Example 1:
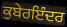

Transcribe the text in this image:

ਕੁਬੇਰਇੰਦਰ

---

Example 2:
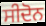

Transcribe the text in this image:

ਸੀਦੋਨ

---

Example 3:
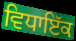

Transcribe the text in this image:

ਵਿਧਾਇੱਕ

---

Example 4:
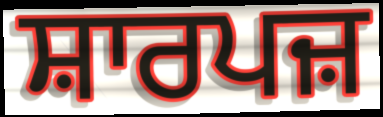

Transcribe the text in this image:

ਸ਼ਾਰਪਜ਼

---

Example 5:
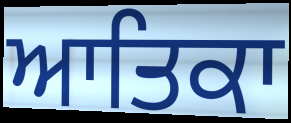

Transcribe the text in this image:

ਆਤਿਕਾ